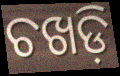
ଚଖଡ଼ି